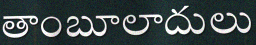
తాంబూలాదులు